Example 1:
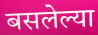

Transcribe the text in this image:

बसलेल्या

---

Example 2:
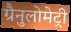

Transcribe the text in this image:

ग्रैनुलोमेट्री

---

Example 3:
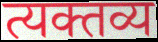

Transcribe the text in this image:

त्यक्तव्य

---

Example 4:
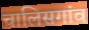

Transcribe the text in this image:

चालिसगांव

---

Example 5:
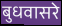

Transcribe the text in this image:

बुधवासरे